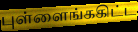
புள்ளைங்ககிட்ட